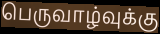
பெருவாழ்வுக்கு